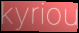
kyriou